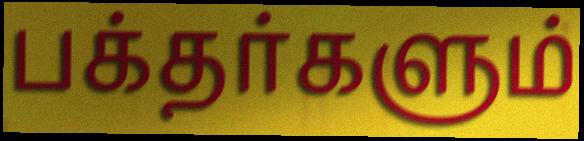
பக்தர்களும்